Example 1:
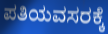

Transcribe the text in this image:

ಪತಿಯವಸರಕ್ಕೆ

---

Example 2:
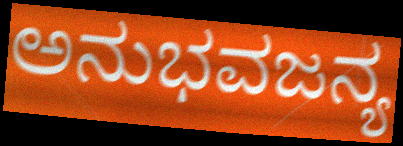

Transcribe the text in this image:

ಅನುಭವಜನ್ಯ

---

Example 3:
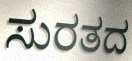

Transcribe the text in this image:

ಸುರತದ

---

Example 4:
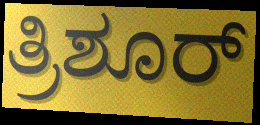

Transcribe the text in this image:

ತ್ರಿಶೂರ್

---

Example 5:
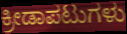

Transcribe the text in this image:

ಕ್ರೀಡಾಪಟುಗಳು